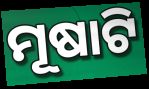
ମୂଷାଟି